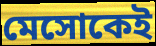
মেসোকেই